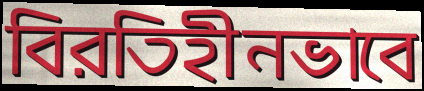
বিরতিহীনভাবে